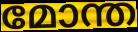
മോന്ത